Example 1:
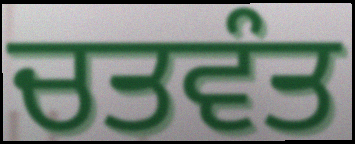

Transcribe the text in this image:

ਚਤਵੰਤ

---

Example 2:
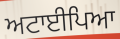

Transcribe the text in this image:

ਅਟਾਈਪਿਆ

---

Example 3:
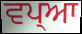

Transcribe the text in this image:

ਵਪ੍ਆ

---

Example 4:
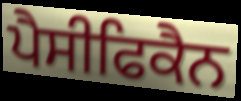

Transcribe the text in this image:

ਪੈਸੀਫਿਕੈਨ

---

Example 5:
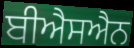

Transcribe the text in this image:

ਬੀਐਸਐਨ